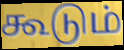
கூடும்